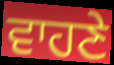
ਵਾਹਣੇ